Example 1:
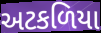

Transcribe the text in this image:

અટકળિયા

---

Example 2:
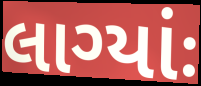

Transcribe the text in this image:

લાગ્યાંઃ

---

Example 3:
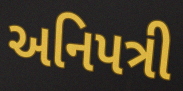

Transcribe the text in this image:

અનિપત્રી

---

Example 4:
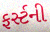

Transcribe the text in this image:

ફર્સ્ટની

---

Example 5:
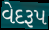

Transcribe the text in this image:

વેદરૂપ